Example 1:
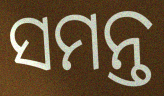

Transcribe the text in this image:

ସମନ୍ତ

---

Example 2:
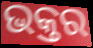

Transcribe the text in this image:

ଭକ୍ତର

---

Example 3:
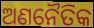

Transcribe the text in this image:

ଅଣନୈତିକ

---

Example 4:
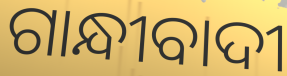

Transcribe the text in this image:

ଗାନ୍ଧୀବାଦୀ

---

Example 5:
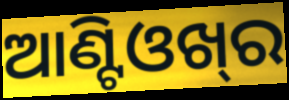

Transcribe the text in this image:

ଆଣ୍ଟିଓଖ୍‍ର